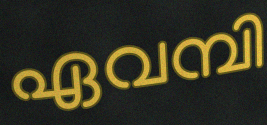
ഏവമ്പി